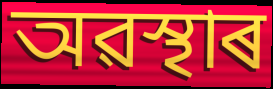
অৱস্থাৰ